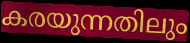
കരയുന്നതിലും